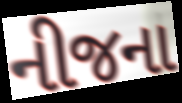
નીજના